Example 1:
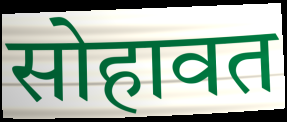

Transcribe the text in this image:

सोहावत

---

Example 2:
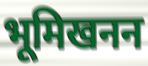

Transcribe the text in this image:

भूमिखनन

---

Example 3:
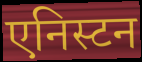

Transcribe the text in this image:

एनिस्टन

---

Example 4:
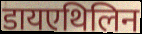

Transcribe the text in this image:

डायएथिलिन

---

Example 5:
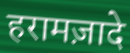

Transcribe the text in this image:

हरामज़ादे